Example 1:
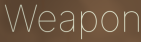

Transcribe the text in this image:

Weapon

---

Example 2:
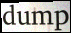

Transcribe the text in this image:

dump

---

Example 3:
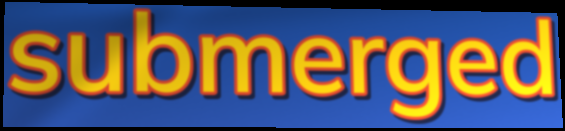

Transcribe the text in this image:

submerged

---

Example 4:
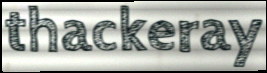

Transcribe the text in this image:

thackeray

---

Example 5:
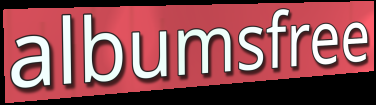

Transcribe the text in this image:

albumsfree